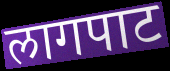
लागपाट